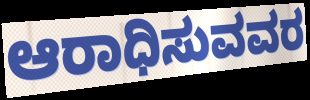
ಆರಾಧಿಸುವವರ